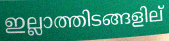
ഇല്ലാത്തിടങ്ങളില്